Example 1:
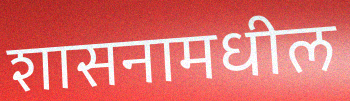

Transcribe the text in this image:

शासनामधील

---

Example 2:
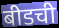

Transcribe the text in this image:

बीडची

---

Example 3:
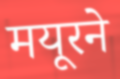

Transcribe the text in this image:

मयूरने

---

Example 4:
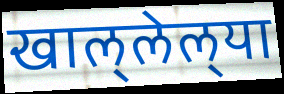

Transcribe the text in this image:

खाल्लेल्या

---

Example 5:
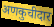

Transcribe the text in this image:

अणकुचीदार